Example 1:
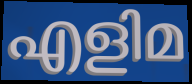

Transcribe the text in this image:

എളിമ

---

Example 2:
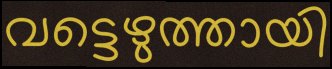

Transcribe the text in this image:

വട്ടെഴുത്തായി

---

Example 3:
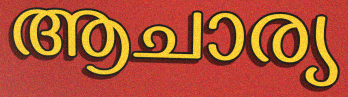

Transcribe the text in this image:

ആചാര്യ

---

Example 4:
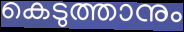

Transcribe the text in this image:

കെടുത്താനും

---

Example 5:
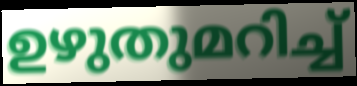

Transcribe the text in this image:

ഉഴുതുമറിച്ച്